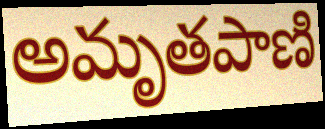
అమృతపాణి